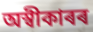
অস্বীকাৰৰ